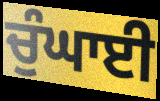
ਚੁੰਘਾਈ